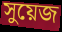
সুয়েজ